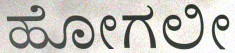
ಹೋಗಲೀ